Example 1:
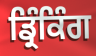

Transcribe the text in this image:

ਡ੍ਰਿੰਕਿੰਗ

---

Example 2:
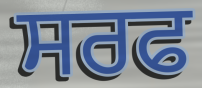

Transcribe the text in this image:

ਸਰਫ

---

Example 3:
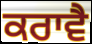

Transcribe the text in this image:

ਕਰਾਵੈ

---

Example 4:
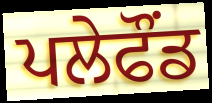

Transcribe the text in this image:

ਪਲੇਫੌਂਡ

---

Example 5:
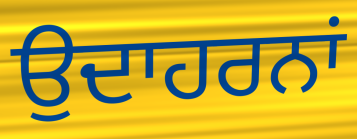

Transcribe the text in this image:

ਉਦਾਹਰਨਾਂ